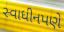
સ્વાધીનપણે